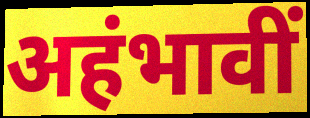
अहंभावीं